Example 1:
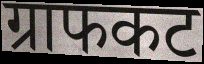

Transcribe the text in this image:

ग्राफकट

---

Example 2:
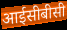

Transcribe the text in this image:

आईसीबीसी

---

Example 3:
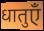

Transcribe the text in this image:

धातुएँ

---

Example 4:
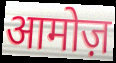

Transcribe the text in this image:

आमोज़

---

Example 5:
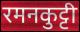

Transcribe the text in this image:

रमनकुट्टी